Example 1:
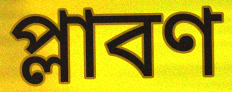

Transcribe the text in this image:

প্লাবণ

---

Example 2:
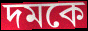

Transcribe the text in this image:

দমকে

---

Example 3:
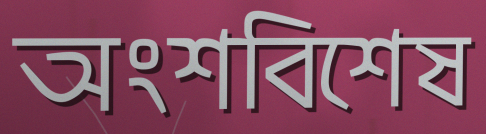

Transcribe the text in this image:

অংশবিশেষ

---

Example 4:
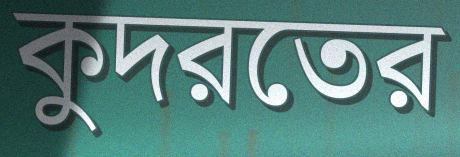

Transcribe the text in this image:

কুদরতের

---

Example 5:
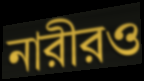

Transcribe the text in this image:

নারীরও